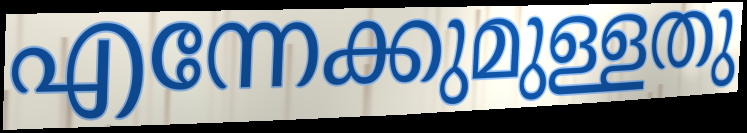
എന്നേക്കുമുള്ളതു